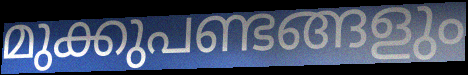
മുക്കുപണ്ടങ്ങളും